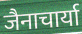
जैनाचार्या